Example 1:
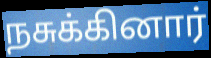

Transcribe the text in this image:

நசுக்கினார்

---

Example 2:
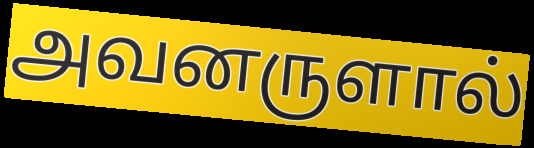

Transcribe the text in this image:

அவனருளால்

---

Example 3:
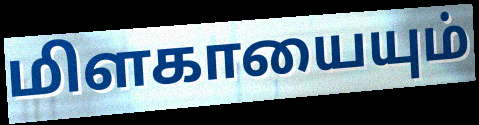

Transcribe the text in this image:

மிளகாயையும்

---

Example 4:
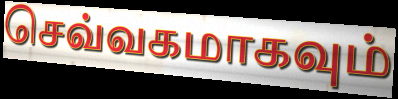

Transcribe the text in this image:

செவ்வகமாகவும்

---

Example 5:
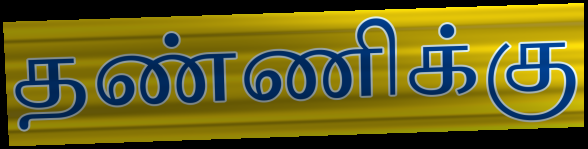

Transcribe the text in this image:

தண்ணிக்கு